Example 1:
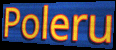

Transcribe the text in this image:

Poleru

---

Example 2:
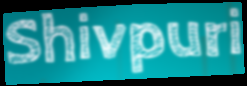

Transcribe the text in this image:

Shivpuri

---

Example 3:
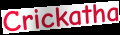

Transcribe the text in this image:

Crickatha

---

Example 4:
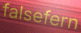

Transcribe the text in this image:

falsefern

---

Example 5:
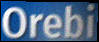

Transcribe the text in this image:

Orebi